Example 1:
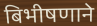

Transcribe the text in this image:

बिभीषणाने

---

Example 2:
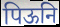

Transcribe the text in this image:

पिऊनि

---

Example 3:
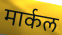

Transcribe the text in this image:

मार्कल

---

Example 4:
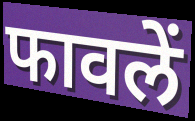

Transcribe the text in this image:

फावलें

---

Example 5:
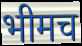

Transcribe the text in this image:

भीमच